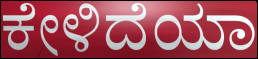
ಕೇಳಿದೆಯಾ